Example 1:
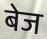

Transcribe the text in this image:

बेज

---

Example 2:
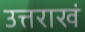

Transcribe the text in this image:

उत्तराखं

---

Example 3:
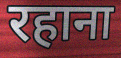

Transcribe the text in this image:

रहाना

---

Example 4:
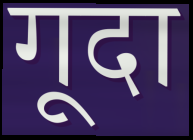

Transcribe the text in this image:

गूदा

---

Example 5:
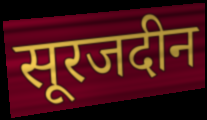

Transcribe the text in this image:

सूरजदीन